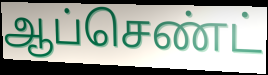
ஆப்செண்ட்